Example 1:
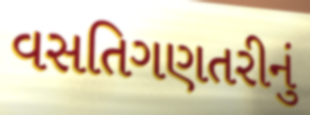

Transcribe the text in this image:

વસતિગણતરીનું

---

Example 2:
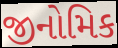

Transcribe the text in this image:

જીનોમિક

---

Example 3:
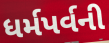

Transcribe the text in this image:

ધર્મપર્વની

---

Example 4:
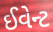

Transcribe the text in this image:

ઈવેન્ટ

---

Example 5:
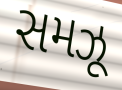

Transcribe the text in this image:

સમઝૂ